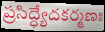
ప్రసిద్ధ్యేదకర్మణః